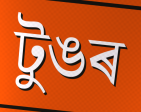
টুঙৰ